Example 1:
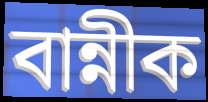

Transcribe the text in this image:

বান্নীক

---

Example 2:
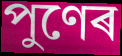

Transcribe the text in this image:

পুণেৰ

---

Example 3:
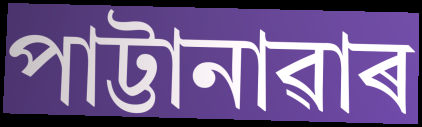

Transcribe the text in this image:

পাট্টানাৱাৰ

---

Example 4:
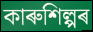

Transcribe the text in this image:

কাৰুশিল্পৰ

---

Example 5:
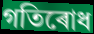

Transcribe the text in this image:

গতিৰোধ